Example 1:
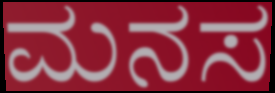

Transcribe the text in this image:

ಮನಸ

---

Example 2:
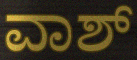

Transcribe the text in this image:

ವಾಶ್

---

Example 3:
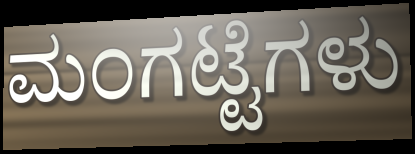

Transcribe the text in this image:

ಮಂಗಟ್ಟೆಗಳು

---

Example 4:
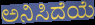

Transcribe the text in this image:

ಅನಿಸಿದೆಯೆ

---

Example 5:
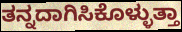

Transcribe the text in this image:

ತನ್ನದಾಗಿಸಿಕೊಳ್ಳುತ್ತಾ